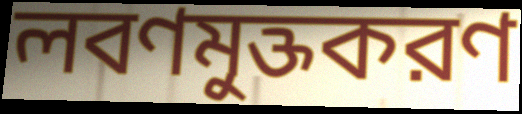
লবণমুক্তকরণ